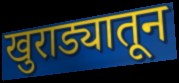
खुराड्यातून